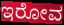
ಇರೋವ